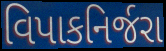
વિપાકનિર્જરા